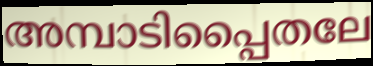
അമ്പാടിപ്പൈതലേ